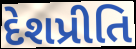
દેશપ્રીતિ